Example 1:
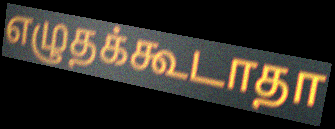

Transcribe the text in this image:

எழுதக்கூடாதா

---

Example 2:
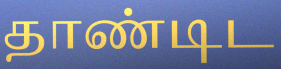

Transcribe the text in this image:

தாண்டிட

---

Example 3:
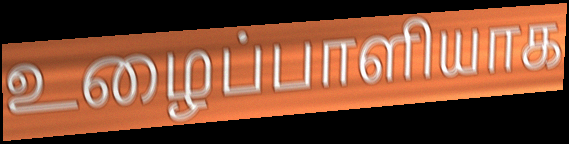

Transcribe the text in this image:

உழைப்பாளியாக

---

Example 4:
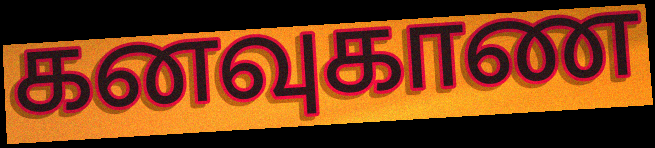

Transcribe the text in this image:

கனவுகாண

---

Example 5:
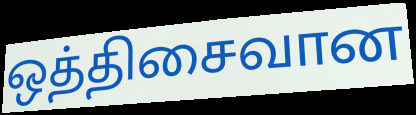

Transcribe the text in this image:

ஒத்திசைவான